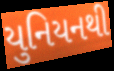
યુનિયનથી